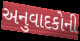
અનુવાદકોની